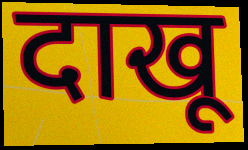
दाखू